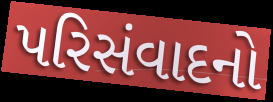
પરિસંવાદનો